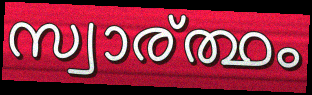
സ്വാര്ത്ഥം